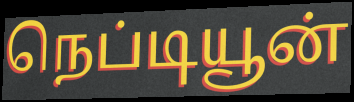
நெப்டியூன்